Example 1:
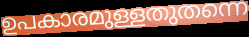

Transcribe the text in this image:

ഉപകാരമുള്ളതുതന്നെ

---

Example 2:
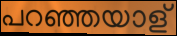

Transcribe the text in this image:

പറഞ്ഞയാള്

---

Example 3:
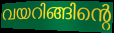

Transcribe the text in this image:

വയറിങ്ങിന്റെ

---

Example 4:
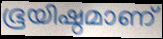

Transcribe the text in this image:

ഭൂയിഷ്ഠമാണ്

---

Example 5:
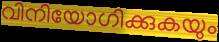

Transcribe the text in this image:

വിനിയോഗിക്കുകയും